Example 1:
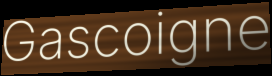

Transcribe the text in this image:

Gascoigne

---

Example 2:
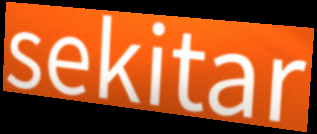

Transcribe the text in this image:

sekitar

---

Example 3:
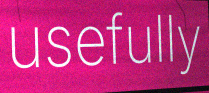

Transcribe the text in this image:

usefully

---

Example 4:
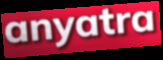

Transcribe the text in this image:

anyatra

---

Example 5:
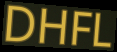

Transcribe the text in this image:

DHFL